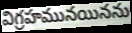
విగ్రహమునయినను